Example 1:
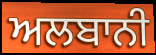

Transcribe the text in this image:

ਅਲਬਾਨੀ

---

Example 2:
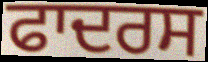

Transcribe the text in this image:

ਫਾਦਰਸ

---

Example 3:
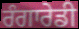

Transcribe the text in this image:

ਰੰਗਾਰੇਡੀ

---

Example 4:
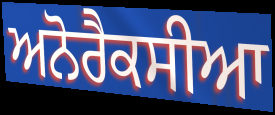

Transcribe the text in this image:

ਅਨੋਰੈਕਸੀਆ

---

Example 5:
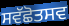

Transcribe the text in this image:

ਸਵੱਛੋਤਸਵ